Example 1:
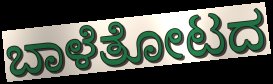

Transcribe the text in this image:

ಬಾಳೆತೋಟದ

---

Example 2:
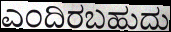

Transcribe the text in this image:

ಎಂದಿರಬಹುದು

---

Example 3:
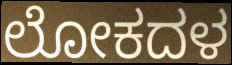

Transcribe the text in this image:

ಲೋಕದಳ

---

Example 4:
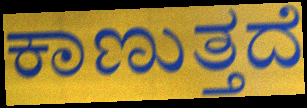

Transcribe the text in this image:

ಕಾಣುತ್ತದೆ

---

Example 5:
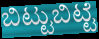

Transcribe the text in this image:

ಬಿಟ್ಟುಬಿಟ್ಟೆ